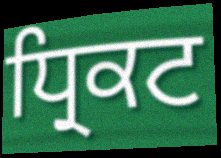
ਧ੍ਰਿਕਟ